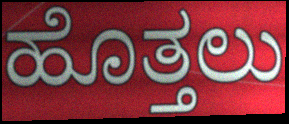
ಹೊತ್ತಲು